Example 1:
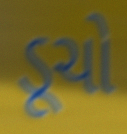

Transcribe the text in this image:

ડૂચો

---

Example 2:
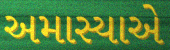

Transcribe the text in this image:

અમાસ્યાએ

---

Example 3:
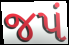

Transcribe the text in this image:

જપં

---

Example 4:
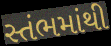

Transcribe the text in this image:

સ્તંભમાંથી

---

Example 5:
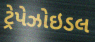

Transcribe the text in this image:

ટ્રેપેઝોઇડલ